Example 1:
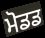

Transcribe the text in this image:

ਮੋਡਡ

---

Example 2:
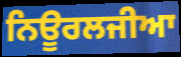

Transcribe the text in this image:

ਨਿਊਰਲਜੀਆ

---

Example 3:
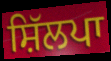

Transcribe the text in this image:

ਸ਼ਿੱਲਪਾ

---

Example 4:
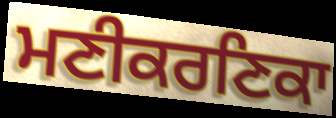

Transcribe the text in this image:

ਮਣੀਕਰਣਿਕਾ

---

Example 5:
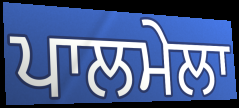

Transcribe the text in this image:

ਪਾਲਮੇਲਾ